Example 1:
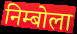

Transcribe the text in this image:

निम्बोला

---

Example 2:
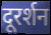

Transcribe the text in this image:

दूरर्शन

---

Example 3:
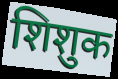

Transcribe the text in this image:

शिशुक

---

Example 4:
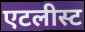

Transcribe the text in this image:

एटलीस्ट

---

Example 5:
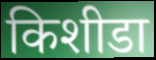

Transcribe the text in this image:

किशीडा